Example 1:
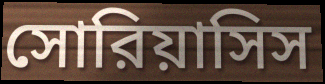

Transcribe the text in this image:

সোরিয়াসিস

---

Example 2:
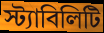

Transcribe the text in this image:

স্ট্যাবিলিটি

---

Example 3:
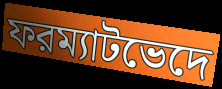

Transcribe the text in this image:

ফরম্যাটভেদে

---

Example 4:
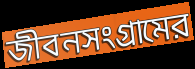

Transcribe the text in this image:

জীবনসংগ্রামের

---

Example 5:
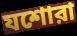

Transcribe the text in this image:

যশোরা